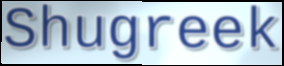
Shugreek